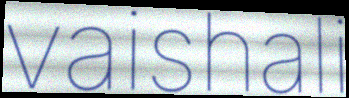
vaishali